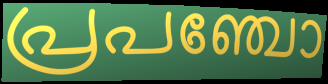
പ്രപഞ്ചോ